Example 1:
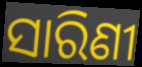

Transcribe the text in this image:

ସାରିଣୀ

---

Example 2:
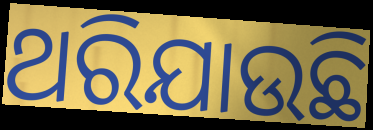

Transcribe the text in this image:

ଥରିଯାଉଛି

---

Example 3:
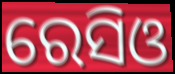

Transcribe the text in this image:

ରେସିଓ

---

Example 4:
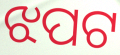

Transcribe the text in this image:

ଝପଟ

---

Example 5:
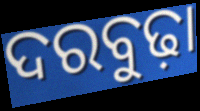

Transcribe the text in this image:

ଦରବୁଢ଼ା